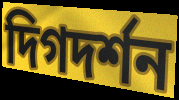
দিগদর্শন